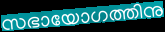
സഭായോഗത്തിനു